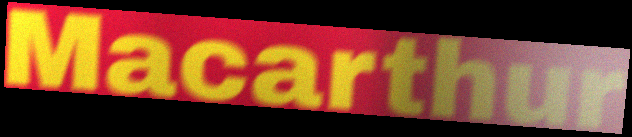
Macarthur